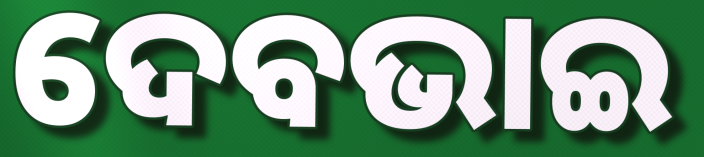
ଦେବଭାଇ